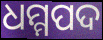
ଧମ୍ମପଦ